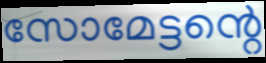
സോമേട്ടന്റെ